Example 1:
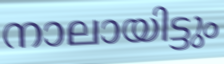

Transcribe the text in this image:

നാലായിട്ടും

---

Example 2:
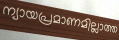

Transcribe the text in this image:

ന്യായപ്രമാണമില്ലാത്ത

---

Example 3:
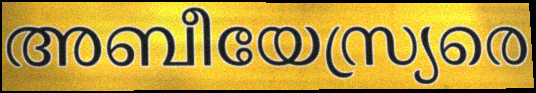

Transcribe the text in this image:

അബീയേസ്ര്യരെ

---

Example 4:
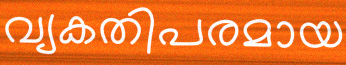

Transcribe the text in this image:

വ്യകതിപരമായ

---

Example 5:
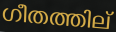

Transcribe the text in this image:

ഗീതത്തില്